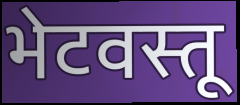
भेटवस्तू